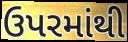
ઉપરમાંથી